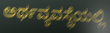
ಅರ್ಥವ್ಯವಸ್ಥೆಯಲ್ಲಿ